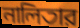
নালিতার